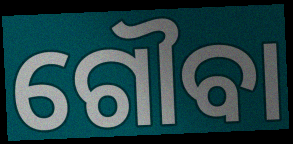
ଗୌବା